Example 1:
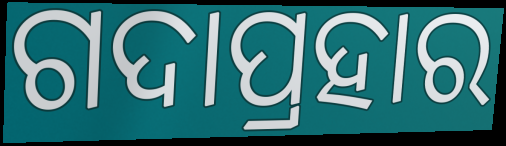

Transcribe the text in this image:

ଗଦାପ୍ରହାର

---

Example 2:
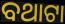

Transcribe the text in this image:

ବଥାଟା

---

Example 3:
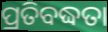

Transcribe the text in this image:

ପ୍ରତିବଦ୍ଧତା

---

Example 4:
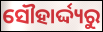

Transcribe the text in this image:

ସୌହାର୍ଦ୍ଦ୍ୟରୁ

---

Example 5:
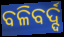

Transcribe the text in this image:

ବଳିବର୍ଦ୍ଦ